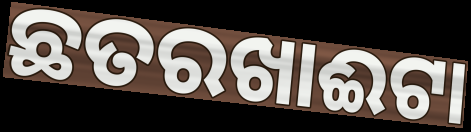
ଛତରଖାଈଟା